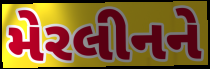
મેરલીનને